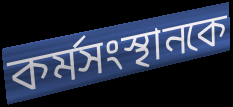
কর্মসংস্থানকে